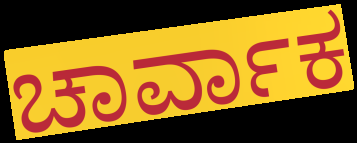
ಚಾರ್ವಾಕ